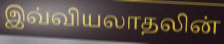
இவ்வியலாதலின்